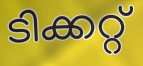
ടിക്കറ്റ്